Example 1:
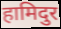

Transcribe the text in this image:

हामिदुर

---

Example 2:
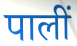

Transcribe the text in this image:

पालीं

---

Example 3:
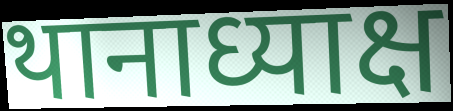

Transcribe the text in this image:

थानाध्याक्ष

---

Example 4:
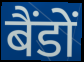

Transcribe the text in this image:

बैंडों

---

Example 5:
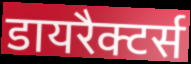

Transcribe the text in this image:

डायरैक्टर्स